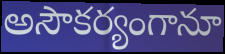
అసౌకర్యంగానూ